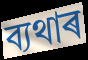
ব্যথাৰ